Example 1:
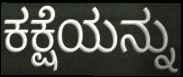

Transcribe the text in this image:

ಕಕ್ಷೆಯನ್ನು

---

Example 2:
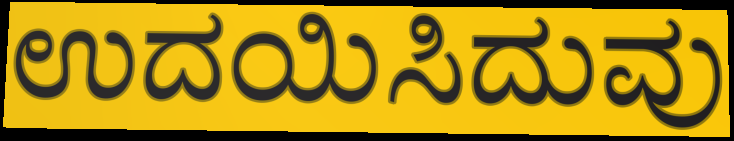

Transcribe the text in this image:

ಉದಯಿಸಿದುವು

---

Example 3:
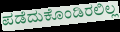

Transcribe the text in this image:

ಪಡೆದುಕೊಂಡಿರಲಿಲ್ಲ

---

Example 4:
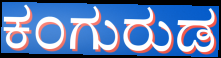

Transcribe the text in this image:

ಕಂಗುರುಡ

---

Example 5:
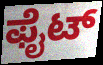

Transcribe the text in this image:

ಫೈಟ್